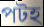
পটহ